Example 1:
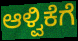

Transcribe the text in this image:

ಆಳ್ವಿಕೆಗೆ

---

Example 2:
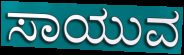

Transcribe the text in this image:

ಸಾಯುವ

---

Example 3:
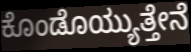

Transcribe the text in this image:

ಕೊಂಡೊಯ್ಯುತ್ತೇನೆ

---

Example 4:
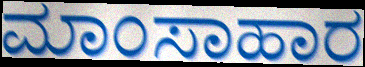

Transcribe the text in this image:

ಮಾಂಸಾಹಾರ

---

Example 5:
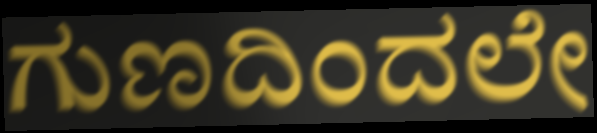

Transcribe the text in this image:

ಗುಣದಿಂದಲೇ